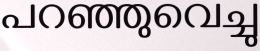
പറഞ്ഞുവെച്ചു